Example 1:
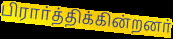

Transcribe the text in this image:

பிரார்த்திக்கின்றனர்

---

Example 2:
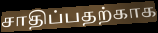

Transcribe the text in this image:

சாதிப்பதற்காக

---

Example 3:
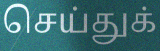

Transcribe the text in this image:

செய்துக்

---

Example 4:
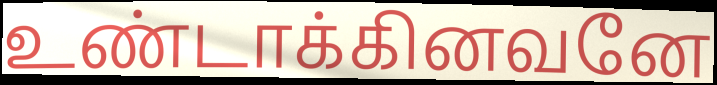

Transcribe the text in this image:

உண்டாக்கினவனே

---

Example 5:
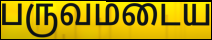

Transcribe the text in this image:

பருவமடைய